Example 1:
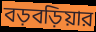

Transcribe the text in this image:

বড়বড়িয়ার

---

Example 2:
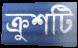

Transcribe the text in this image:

ক্রুশটি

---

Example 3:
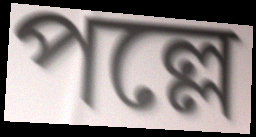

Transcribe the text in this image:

পল্লে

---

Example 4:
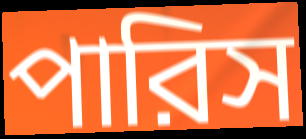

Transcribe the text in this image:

পারিস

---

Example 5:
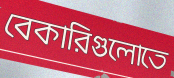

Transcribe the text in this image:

বেকারিগুলোতে